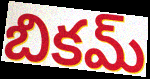
బికమ్